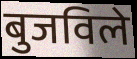
बुजविले